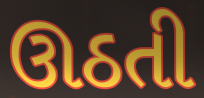
ઊઠતી